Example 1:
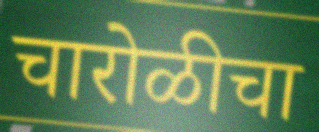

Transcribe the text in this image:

चारोळीचा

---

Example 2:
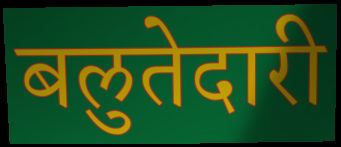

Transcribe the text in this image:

बलुतेदारी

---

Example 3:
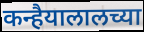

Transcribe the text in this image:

कन्हैयालालच्या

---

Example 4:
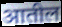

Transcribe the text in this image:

आतील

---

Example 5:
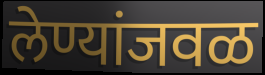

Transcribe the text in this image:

लेण्यांजवळ